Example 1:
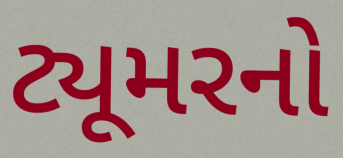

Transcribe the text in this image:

ટ્યૂમરનો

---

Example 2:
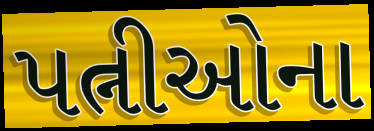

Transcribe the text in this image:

પત્નીઓના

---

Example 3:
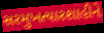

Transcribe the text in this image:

સરમુખત્યારશાહીને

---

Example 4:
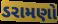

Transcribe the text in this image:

ડરામણો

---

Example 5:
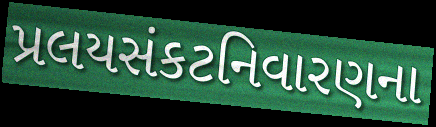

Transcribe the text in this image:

પ્રલયસંકટનિવારણના